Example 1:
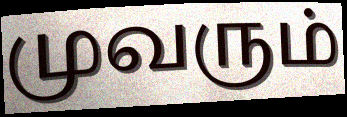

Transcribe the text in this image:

முவரும்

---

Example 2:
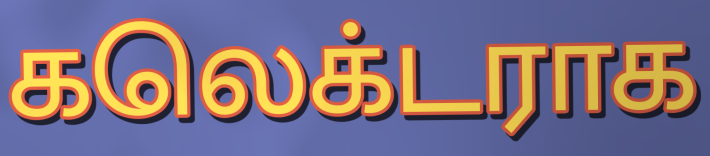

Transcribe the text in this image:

கலெக்டராக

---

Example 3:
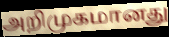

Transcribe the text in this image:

அறிமுகமானது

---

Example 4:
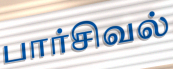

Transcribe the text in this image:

பார்சிவல்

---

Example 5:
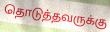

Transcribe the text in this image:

தொடுத்தவருக்கு